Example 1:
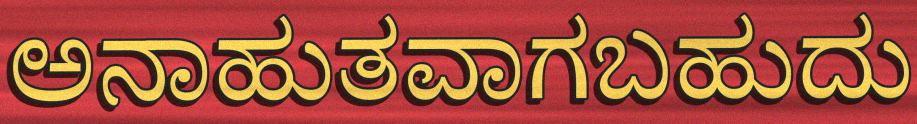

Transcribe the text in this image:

ಅನಾಹುತವಾಗಬಹುದು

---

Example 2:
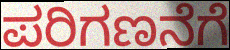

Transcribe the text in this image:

ಪರಿಗಣನೆಗೆ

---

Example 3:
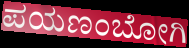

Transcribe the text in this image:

ಪಯಣಂಬೋಗಿ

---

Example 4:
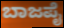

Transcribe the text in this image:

ಬಾಜಪೈ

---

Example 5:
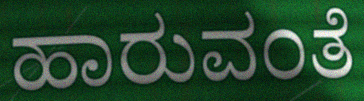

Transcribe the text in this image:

ಹಾರುವಂತೆ